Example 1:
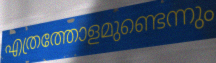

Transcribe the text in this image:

എത്രത്തോളമുണ്ടെന്നും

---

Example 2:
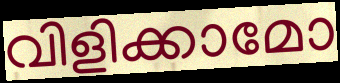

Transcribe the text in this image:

വിളിക്കാമോ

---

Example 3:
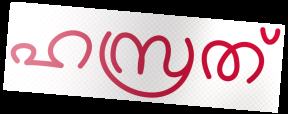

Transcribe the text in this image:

ഹസ്രത്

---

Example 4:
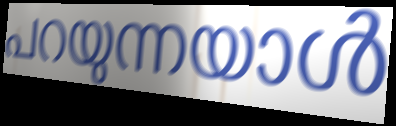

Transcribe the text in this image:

പറയുന്നയാൾ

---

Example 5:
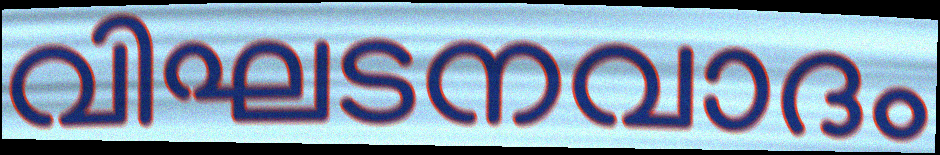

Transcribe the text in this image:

വിഘടനവാദം